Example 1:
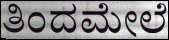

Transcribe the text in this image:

ತಿಂದಮೇಲೆ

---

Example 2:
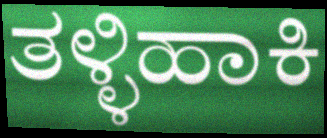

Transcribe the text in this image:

ತಳ್ಳಿಹಾಕಿ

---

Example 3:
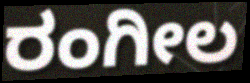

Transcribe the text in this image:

ರಂಗೀಲ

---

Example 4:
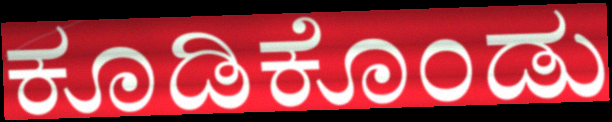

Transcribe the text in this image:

ಕೂಡಿಕೊಂಡು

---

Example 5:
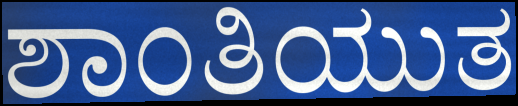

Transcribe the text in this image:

ಶಾಂತಿಯುತ